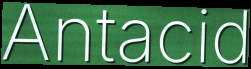
Antacid